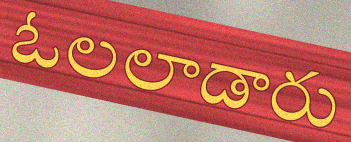
ఓలలాడారు